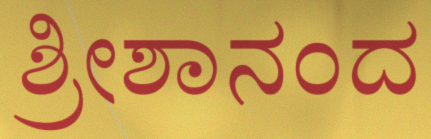
ಶ್ರೀಶಾನಂದ